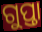
ଗୁପ୍ତା